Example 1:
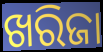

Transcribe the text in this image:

ଖରିଜା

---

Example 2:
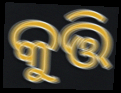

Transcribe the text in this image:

କୁତ୍ତି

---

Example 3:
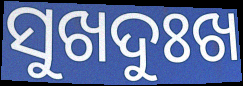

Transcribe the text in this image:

ସୁଖଦୁଃଖ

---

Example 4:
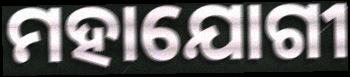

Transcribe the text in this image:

ମହାଯୋଗୀ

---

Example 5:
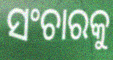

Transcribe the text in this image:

ସଂଚାରକୁ